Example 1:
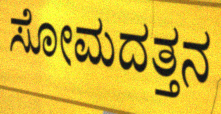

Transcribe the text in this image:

ಸೋಮದತ್ತನ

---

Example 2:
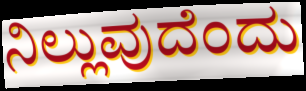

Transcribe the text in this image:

ನಿಲ್ಲುವುದೆಂದು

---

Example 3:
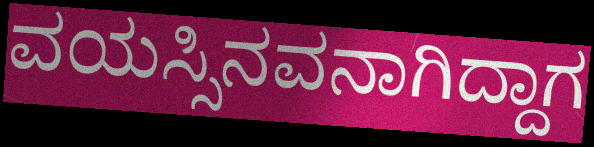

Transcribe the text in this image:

ವಯಸ್ಸಿನವನಾಗಿದ್ದಾಗ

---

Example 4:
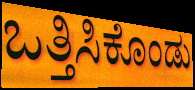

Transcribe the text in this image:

ಒತ್ತಿಸಿಕೊಂಡು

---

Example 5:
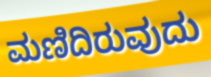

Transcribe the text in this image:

ಮಣಿದಿರುವುದು